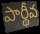
పార్థీవ